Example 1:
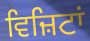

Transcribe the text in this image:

ਵਿਜ਼ਿਟਾਂ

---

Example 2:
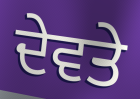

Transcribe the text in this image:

ਦੇਵਤੇ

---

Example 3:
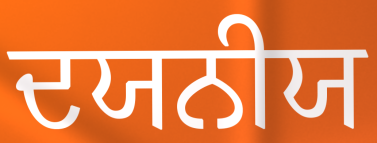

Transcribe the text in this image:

ਦਯਨੀਯ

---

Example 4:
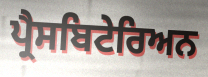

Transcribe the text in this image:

ਪ੍ਰੈਸਬਿਟੇਰਿਅਨ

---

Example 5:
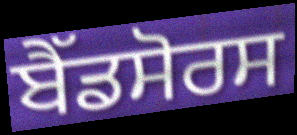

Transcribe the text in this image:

ਬੈੱਡਸੋਰਸ